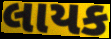
લાયક